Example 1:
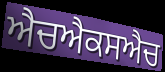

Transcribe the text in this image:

ਐਚਐਕਸਐਚ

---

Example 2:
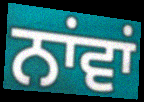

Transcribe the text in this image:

ਨਾਂਵਾਂ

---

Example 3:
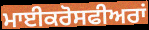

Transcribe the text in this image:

ਮਾਈਕਰੋਸਫੀਅਰਾਂ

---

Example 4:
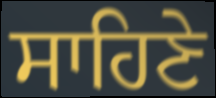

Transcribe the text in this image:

ਸਾਹਿਣੇ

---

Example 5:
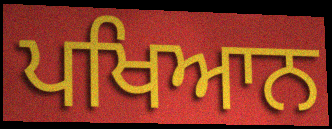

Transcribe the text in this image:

ਪਖਿਆਨ